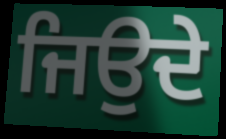
ਜਿਉਦੇ